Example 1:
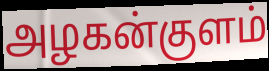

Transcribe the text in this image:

அழகன்குளம்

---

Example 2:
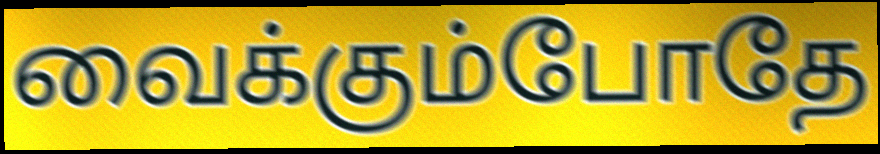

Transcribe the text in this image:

வைக்கும்போதே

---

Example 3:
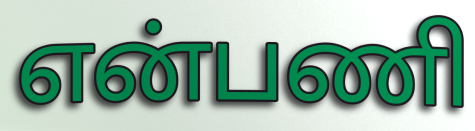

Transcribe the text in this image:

என்பணி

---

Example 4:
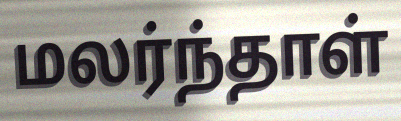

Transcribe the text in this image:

மலர்ந்தாள்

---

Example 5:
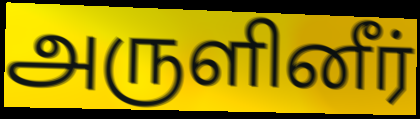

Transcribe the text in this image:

அருளினீர்